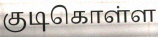
குடிகொள்ள